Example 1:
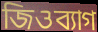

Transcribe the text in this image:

জিওব্যাগ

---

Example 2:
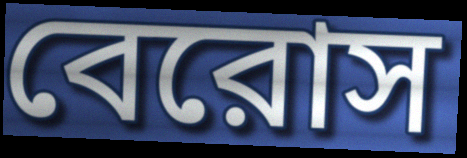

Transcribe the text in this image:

বেরোস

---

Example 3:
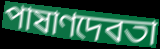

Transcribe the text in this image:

পাষাণদেবতা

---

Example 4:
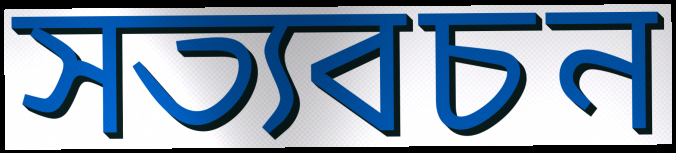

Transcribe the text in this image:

সত্যবচন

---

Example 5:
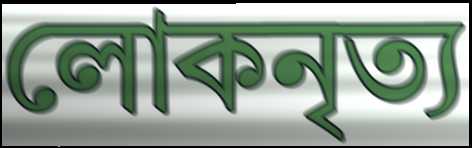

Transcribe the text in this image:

লোকনৃত্য